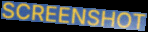
SCREENSHOT